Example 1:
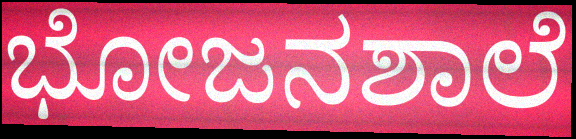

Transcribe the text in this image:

ಭೋಜನಶಾಲೆ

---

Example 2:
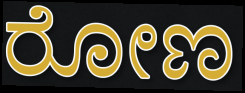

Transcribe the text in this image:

ರೋಣ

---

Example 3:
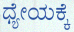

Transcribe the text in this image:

ಧ್ಯೇಯಕ್ಕೆ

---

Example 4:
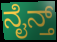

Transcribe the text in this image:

ನೈನ್ತ್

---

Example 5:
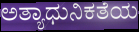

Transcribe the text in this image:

ಅತ್ಯಾಧುನಿಕತೆಯ